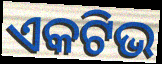
ଏକଟିଭ